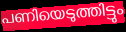
പണിയെടുത്തിട്ടും